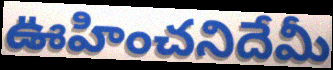
ఊహించనిదేమీ